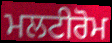
ਮਲਟੀਰੋਮ